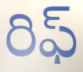
రిఫ్